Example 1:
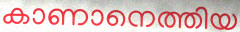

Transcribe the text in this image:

കാണാനെത്തിയ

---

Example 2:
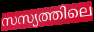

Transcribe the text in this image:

സസ്യത്തിലെ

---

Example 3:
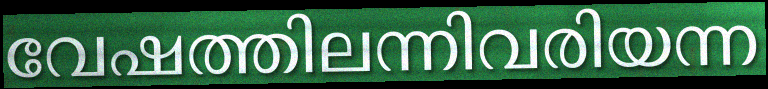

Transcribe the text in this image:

വേഷത്തിലന്നിവരിയന്ന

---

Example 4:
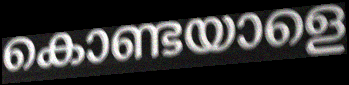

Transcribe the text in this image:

കൊണ്ടയാളെ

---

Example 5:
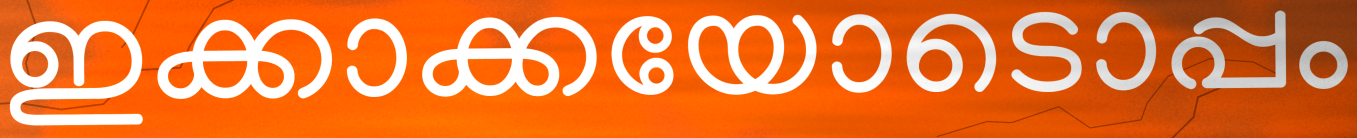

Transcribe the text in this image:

ഇക്കാക്കയോടൊപ്പം